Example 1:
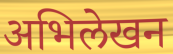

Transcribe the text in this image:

अभिलेखन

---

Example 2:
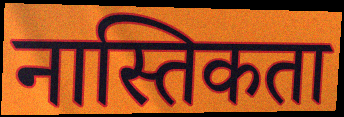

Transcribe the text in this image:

नास्तिकता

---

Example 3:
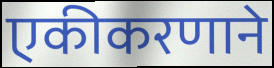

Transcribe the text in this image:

एकीकरणाने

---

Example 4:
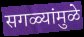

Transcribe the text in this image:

सगळ्यांमुळे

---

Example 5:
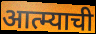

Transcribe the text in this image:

आत्म्याची